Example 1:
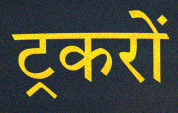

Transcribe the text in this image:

ट्रकरों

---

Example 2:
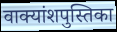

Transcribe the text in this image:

वाक्यांशपुस्तिका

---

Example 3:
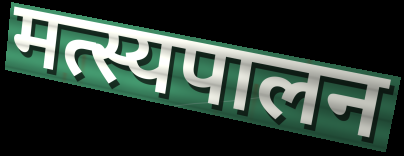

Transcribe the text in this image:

मत्स्यपालन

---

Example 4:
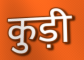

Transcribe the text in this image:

कुड़ी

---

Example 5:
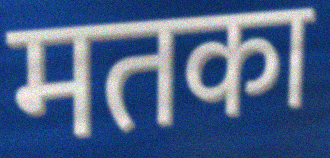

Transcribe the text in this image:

मतका